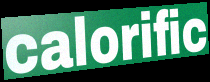
calorific